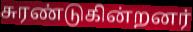
சுரண்டுகின்றனர்